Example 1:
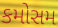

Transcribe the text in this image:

કમોસમ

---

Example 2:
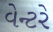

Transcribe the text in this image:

વેન્ટરે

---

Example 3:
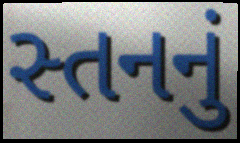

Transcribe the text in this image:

સ્તનનું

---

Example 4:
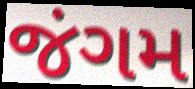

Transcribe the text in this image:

જંગમ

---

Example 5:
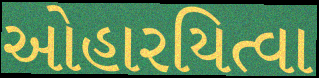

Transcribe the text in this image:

ઓહારયિત્વા